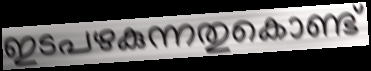
ഇടപഴകുന്നതുകൊണ്ട്